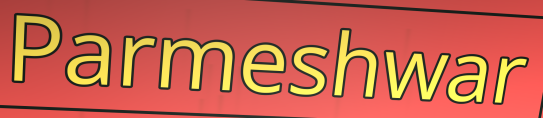
Parmeshwar